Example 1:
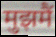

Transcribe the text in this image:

मुझमैं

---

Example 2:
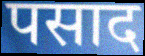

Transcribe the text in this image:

पसाद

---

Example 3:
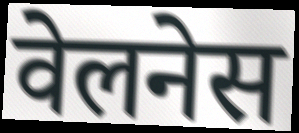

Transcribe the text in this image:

वेलनेस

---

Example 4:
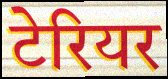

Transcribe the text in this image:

टेरियर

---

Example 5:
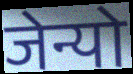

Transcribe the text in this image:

जेन्यो